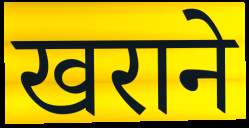
खराने